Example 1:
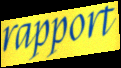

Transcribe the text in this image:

rapport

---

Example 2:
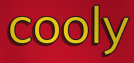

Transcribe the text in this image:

cooly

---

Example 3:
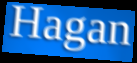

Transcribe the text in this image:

Hagan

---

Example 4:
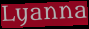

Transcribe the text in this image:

Lyanna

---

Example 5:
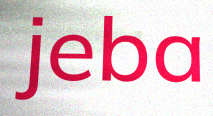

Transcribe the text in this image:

jeba